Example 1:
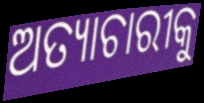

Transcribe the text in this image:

ଅତ୍ୟାଚାରୀକୁ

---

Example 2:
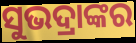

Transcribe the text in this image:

ସୁଭଦ୍ରାଙ୍କର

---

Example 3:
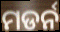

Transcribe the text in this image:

ମଡର୍ନ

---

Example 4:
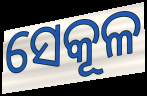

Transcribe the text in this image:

ସେକୂଳ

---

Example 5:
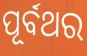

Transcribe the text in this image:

ପୂର୍ବଥର